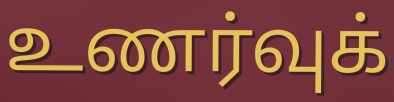
உணர்வுக்